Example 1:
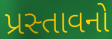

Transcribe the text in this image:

પ્રસ્તાવનો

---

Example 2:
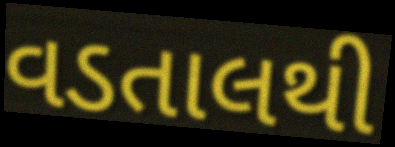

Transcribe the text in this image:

વડતાલથી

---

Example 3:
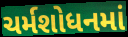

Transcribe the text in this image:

ચર્મશોધનમાં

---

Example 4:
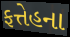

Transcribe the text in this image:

ફત્તેહના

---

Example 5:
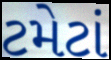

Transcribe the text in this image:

ટમેટાં